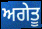
ਅਗੇਤੂ